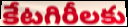
కేటగిరీలకు